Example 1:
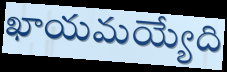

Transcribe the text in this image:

ఖాయమయ్యేది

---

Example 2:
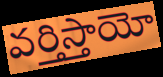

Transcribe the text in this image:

వర్తిస్తాయో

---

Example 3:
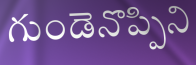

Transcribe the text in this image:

గుండెనొప్పిని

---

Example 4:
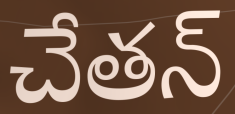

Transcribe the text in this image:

చేతన్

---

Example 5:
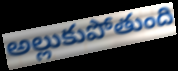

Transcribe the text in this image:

అల్లుకుపోతుంది